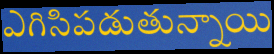
ఎగిసిపడుతున్నాయి